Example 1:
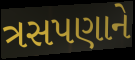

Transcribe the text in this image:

ત્રસપણાને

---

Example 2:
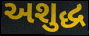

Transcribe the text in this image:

અશુદ્ધ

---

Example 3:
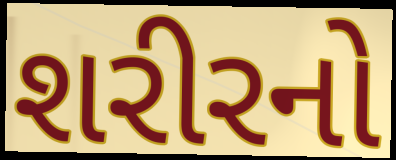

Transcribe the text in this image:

શરીરનો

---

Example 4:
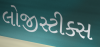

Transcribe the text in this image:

લોજીસ્ટીક્સ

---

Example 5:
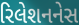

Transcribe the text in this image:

રિલેશનનેસ